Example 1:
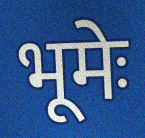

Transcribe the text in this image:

भूमेः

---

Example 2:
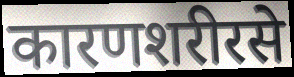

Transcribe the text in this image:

कारणशरीरसे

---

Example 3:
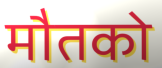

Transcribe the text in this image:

मौतको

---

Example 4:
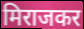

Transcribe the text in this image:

मिराजकर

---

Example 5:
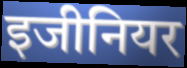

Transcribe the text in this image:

इजीनियर